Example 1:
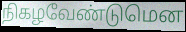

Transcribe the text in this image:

நிகழவேண்டுமென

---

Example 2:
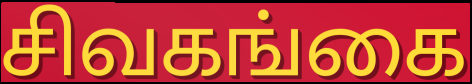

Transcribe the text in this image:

சிவகங்கை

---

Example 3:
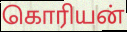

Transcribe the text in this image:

கொரியன்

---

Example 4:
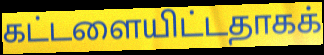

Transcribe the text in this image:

கட்டளையிட்டதாகக்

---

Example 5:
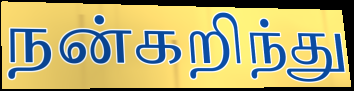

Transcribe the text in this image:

நன்கறிந்து